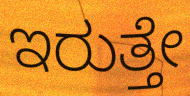
ಇರುತ್ತೇ